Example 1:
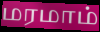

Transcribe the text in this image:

மரமாம்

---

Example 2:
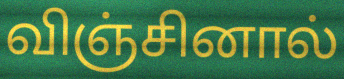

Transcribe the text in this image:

விஞ்சினால்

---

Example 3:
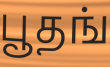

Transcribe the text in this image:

பூதங்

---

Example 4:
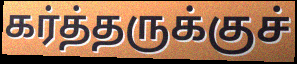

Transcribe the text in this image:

கர்த்தருக்குச்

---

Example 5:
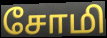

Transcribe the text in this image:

சோமி